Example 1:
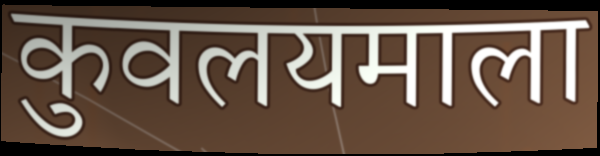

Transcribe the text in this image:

कुवलयमाला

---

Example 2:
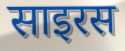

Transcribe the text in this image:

साइरस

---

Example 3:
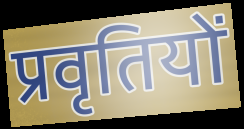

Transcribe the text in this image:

प्रवृतियों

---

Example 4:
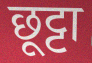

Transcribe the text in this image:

छूट्टा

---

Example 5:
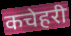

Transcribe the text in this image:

कचेहरी